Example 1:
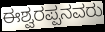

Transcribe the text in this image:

ಈಶ್ವರಪ್ಪನವರು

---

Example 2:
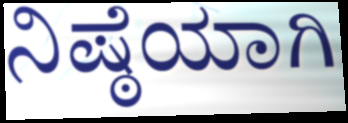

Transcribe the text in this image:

ನಿಷ್ಠೆಯಾಗಿ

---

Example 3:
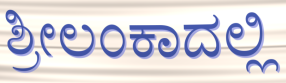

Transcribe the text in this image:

ಶ್ರೀಲಂಕಾದಲ್ಲಿ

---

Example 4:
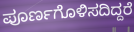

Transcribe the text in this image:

ಪೂರ್ಣಗೊಳಿಸದಿದ್ದರೆ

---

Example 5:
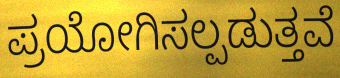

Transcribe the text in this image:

ಪ್ರಯೋಗಿಸಲ್ಪಡುತ್ತವೆ